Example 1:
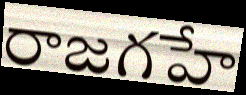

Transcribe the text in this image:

రాజగహే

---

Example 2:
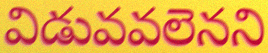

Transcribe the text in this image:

విడువవలెనని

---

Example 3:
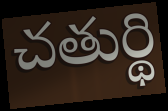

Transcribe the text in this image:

చతుర్థి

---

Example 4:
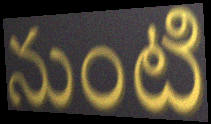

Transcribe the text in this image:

నుంటి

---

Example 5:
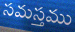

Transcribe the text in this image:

సమస్తము